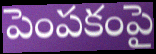
పెంపకంపై